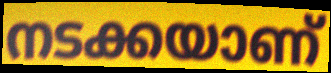
നടക്കയാണ്